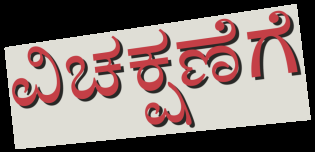
ವಿಚಕ್ಷಣೆಗೆ